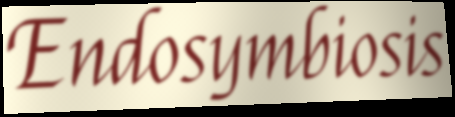
Endosymbiosis